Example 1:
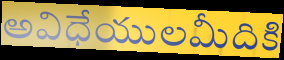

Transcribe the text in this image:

అవిధేయులమీదికి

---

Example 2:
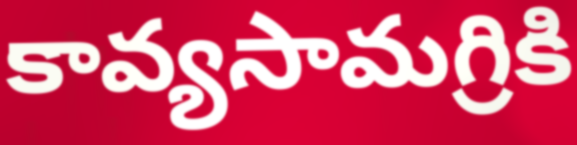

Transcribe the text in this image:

కావ్యసామగ్రికి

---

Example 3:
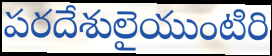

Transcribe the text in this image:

పరదేశులైయుంటిరి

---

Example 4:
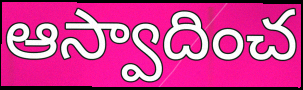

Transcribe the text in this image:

ఆస్వాదించ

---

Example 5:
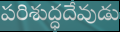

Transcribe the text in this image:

పరిశుద్ధదేవుడు